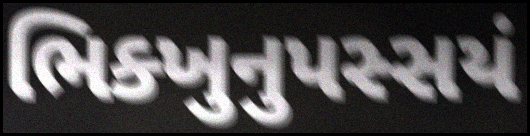
ભિક્ખુનુપસ્સયં